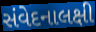
સંવેદનાલક્ષી